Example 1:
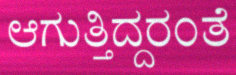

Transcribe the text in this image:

ಆಗುತ್ತಿದ್ದರಂತೆ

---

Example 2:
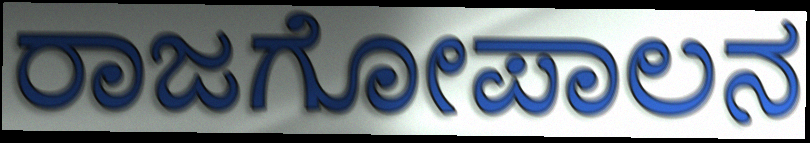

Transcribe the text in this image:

ರಾಜಗೋಪಾಲನ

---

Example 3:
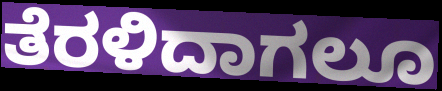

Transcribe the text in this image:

ತೆರಳಿದಾಗಲೂ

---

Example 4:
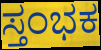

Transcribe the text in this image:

ಸ್ತಂಭಕ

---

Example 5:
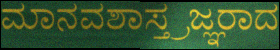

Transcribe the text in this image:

ಮಾನವಶಾಸ್ತ್ರಜ್ಞರಾದ